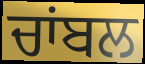
ਚਾਂਬਲ